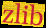
zlib